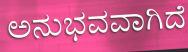
ಅನುಭವವಾಗಿದೆ